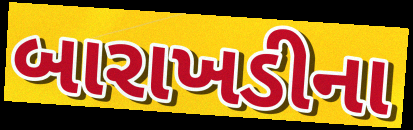
બારાખડીના